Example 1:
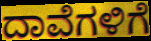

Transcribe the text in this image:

ದಾವೆಗಳಿಗೆ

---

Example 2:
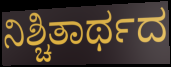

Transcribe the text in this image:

ನಿಶ್ಚಿತಾರ್ಥದ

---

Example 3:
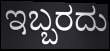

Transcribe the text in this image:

ಇಬ್ಬರದು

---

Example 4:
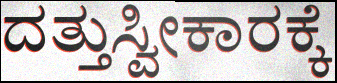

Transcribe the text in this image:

ದತ್ತುಸ್ವೀಕಾರಕ್ಕೆ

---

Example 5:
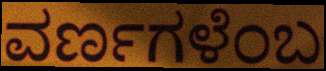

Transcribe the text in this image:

ವರ್ಣಗಳೆಂಬ